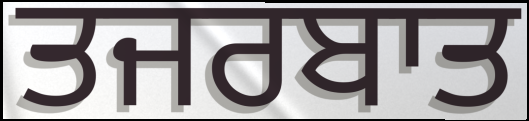
ਤਜਰਬਾਤ